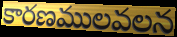
కారణములవలన